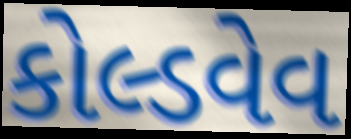
કોલ્ડવેવ